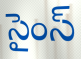
సైంస్